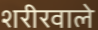
शरीरवाले